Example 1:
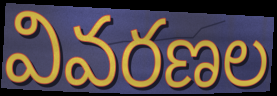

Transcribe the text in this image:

వివరణల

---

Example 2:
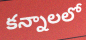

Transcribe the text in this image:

కన్నాలలో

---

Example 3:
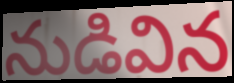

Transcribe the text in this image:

నుడివిన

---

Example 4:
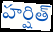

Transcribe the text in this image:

హర్షిత్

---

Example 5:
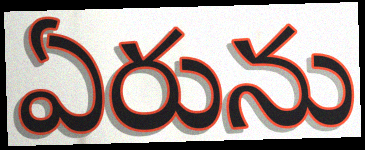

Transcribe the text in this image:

ఏరును